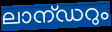
ലാന്ഡറും